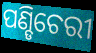
ପଣ୍ଡିଚେରୀ